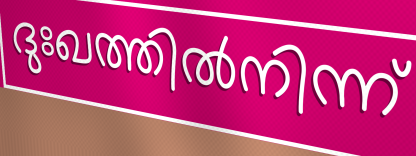
ദുഃഖത്തിൽനിന്ന്